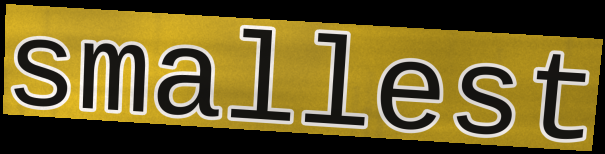
smallest